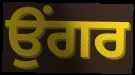
ਉਂਗਰ